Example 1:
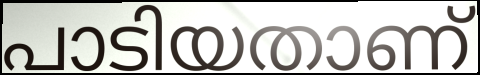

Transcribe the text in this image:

പാടിയതാണ്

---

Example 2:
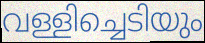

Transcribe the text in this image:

വള്ളിച്ചെടിയും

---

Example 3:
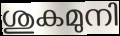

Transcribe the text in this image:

ശുകമുനി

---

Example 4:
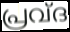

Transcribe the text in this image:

പ്രവ്ദ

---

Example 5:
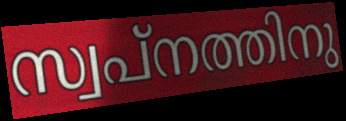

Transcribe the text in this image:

സ്വപ്നത്തിനു